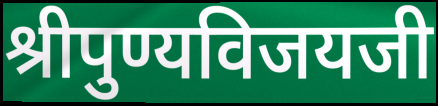
श्रीपुण्यविजयजी